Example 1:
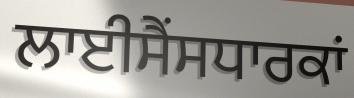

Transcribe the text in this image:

ਲਾਈਸੈਂਸਧਾਰਕਾਂ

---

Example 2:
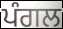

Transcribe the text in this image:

ਪੰਗਲ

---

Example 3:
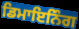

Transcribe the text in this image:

ਡਿਮਾਇਨਿੰਗ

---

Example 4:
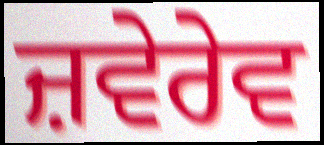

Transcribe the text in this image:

ਜ਼ਵੇਰੇਵ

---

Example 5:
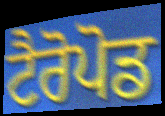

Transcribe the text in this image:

ਟੈਰੋਪੋਡ